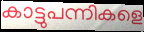
കാട്ടുപന്നികളെ